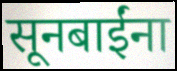
सूनबाईंना